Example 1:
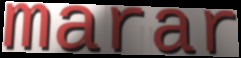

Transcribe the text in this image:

marar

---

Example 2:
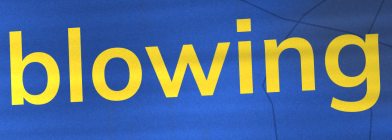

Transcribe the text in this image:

blowing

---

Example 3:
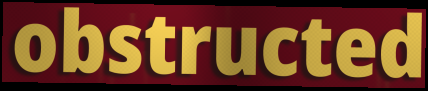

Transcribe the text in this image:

obstructed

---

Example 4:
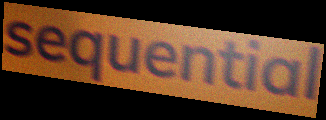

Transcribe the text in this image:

sequential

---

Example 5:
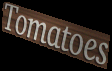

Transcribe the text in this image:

Tomatoes